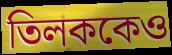
তিলককেও